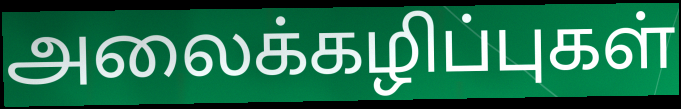
அலைக்கழிப்புகள்